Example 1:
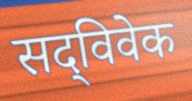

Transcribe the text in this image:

सद्‌विवेक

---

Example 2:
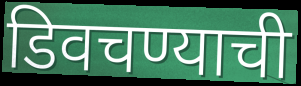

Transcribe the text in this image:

डिवचण्याची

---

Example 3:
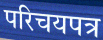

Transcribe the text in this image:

परिचयपत्र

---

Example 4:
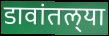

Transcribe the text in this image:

डावांतल्या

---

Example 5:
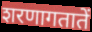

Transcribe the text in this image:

शरणागतातें